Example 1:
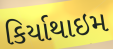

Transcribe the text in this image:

કિર્યાથાઇમ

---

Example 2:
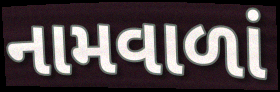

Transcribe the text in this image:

નામવાળાં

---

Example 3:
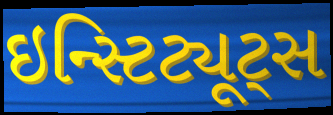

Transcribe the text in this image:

ઇન્સ્ટિટ્યૂટ્સ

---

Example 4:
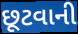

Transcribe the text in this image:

છૂટવાની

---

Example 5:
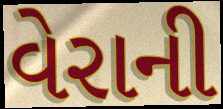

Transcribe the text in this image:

વેરાની